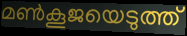
മൺകൂജയെടുത്ത്